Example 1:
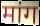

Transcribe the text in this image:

मांग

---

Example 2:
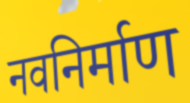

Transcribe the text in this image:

नवनिर्माण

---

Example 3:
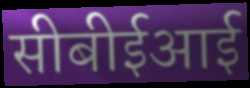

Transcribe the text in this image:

सीबीईआई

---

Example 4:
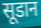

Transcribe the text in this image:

सूडान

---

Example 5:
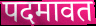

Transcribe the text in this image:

पदमावत